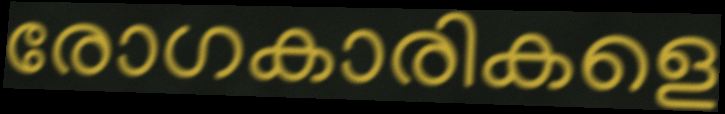
രോഗകാരികളെ